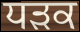
ਧਡ਼ਕ